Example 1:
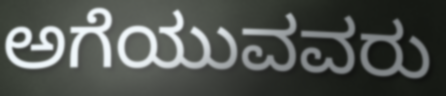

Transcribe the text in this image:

ಅಗೆಯುವವರು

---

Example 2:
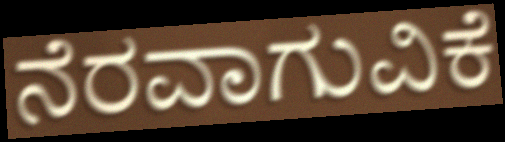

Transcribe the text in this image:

ನೆರವಾಗುವಿಕೆ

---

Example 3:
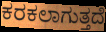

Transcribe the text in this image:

ಕರಕಲಾಗುತ್ತದೆ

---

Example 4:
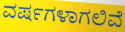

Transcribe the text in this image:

ವರ್ಷಗಳಾಗಲಿವೆ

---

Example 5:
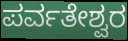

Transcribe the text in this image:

ಪರ್ವತೇಶ್ವರ